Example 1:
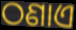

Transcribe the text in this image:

ଠଣାଏ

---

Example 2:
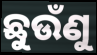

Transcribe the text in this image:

ଛୁଉଁଣୁ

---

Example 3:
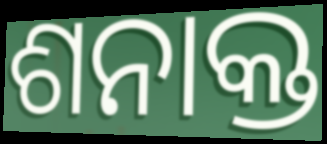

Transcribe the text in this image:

ଶନାକ୍ତ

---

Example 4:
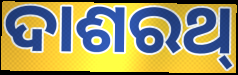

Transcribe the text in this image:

ଦାଶରଥ୍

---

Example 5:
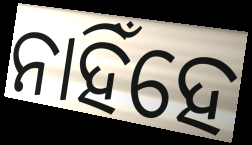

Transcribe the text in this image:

ନାହିଁହେ